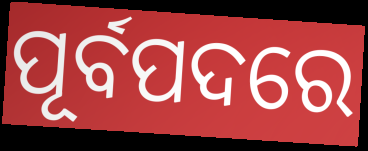
ପୂର୍ବପଦରେ